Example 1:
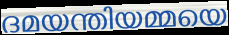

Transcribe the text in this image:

ദമയന്തിയമ്മയെ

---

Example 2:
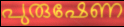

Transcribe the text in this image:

പുരുഷേണ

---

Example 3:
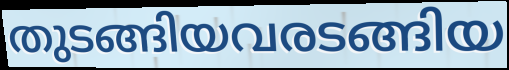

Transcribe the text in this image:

തുടങ്ങിയവരടങ്ങിയ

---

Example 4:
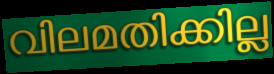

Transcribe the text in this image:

വിലമതിക്കില്ല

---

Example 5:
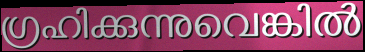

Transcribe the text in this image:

ഗ്രഹിക്കുന്നുവെങ്കിൽ